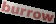
burrow